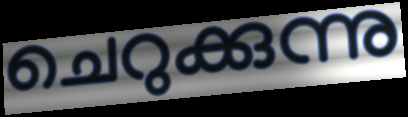
ചെറുക്കുന്നു